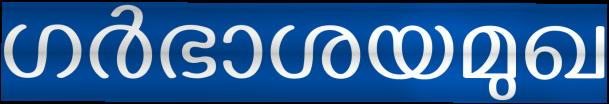
ഗർഭാശയമുഖ